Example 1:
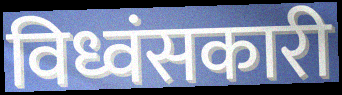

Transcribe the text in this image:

विध्वंसकारी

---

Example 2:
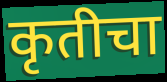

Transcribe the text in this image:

कृतीचा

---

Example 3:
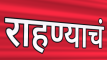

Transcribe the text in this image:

राहण्याचं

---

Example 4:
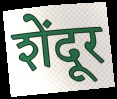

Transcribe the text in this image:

शेंदूर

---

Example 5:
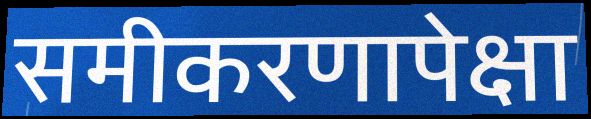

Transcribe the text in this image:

समीकरणापेक्षा